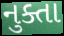
નુક્તા